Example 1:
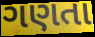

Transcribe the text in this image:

ગણતા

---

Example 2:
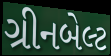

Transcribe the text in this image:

ગ્રીનબેલ્ટ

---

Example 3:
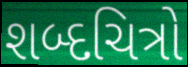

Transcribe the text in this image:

શબ્દચિત્રો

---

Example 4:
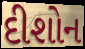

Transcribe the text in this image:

દીશોન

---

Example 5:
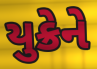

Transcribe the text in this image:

યુક્રેને